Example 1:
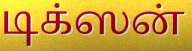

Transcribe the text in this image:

டிக்ஸன்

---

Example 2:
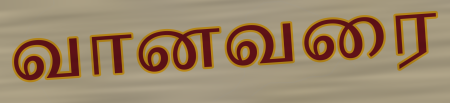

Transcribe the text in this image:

வானவரை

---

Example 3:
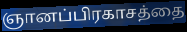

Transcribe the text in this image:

ஞானப்பிரகாசத்தை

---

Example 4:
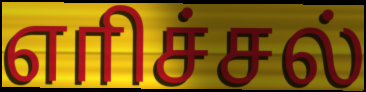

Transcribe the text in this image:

எரிச்சல்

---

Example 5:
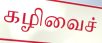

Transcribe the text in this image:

கழிவைச்